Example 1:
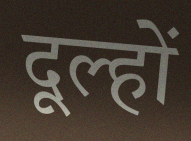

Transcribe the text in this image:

दूल्‍हों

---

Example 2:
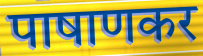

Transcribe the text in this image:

पाषाणकर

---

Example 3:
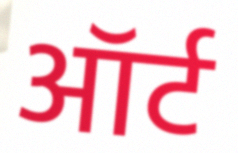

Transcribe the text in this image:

ऑर्ट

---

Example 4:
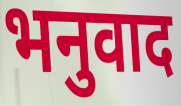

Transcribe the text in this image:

भनुवाद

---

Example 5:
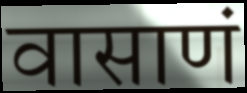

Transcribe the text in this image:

वासाणं